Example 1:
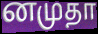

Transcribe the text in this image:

னமுதா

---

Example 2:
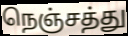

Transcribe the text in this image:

நெஞ்சத்து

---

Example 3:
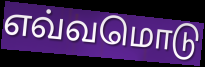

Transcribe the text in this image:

எவ்வமொடு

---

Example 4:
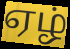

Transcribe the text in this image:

ஏழ்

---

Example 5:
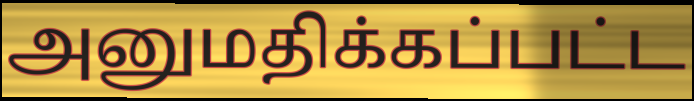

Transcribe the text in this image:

அனுமதிக்கப்பட்ட